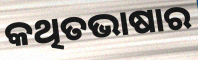
କଥିତଭାଷାର